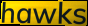
hawks